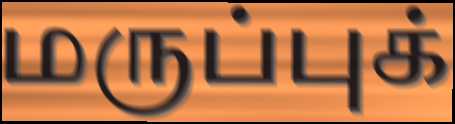
மருப்புக்